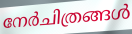
നേർചിത്രങ്ങൾ